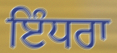
ਇੰਧਰਾ